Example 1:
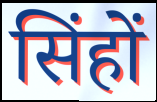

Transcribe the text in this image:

सिंहों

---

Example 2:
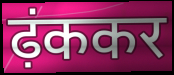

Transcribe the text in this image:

ढ़ंककर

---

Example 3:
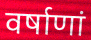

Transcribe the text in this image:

वर्षाणां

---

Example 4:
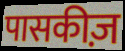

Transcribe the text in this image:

पासकीज़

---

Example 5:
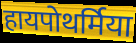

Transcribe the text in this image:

हायपोथर्मिया